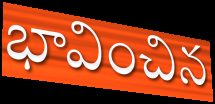
భావించిన